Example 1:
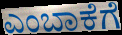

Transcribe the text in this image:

ಎಂಬಾಕೆಗೆ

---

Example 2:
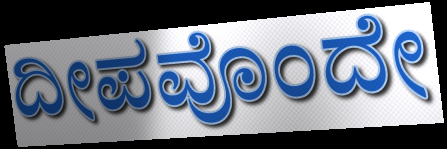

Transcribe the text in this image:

ದೀಪವೊಂದೇ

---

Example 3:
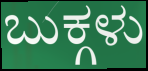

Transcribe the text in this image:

ಬುಕ್ಗಳು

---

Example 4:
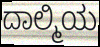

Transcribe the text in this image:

ದಾಲ್ಮಿಯ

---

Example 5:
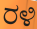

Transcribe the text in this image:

ರಳಿ